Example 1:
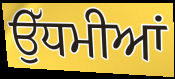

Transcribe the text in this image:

ਉੱਧਮੀਆਂ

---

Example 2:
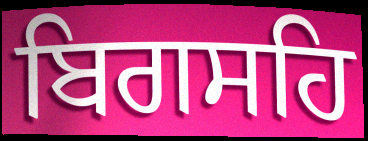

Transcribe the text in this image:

ਬਿਗਸਹਿ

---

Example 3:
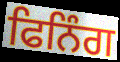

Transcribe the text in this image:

ਫਿਨਿੰਗ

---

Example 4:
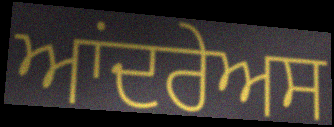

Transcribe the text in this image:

ਆਂਦਰੇਅਸ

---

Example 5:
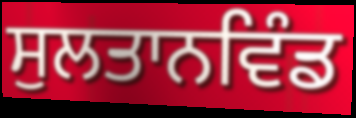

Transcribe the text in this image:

ਸੁਲਤਾਨਵਿੰਡ